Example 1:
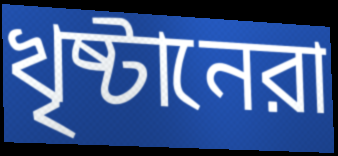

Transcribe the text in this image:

খৃষ্টানেরা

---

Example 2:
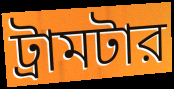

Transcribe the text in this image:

ট্রামটার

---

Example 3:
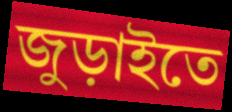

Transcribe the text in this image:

জুড়াইতে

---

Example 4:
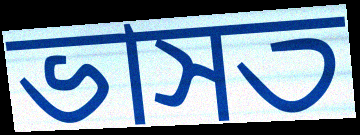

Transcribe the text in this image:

ভাসত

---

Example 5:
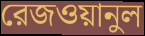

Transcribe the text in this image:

রেজওয়ানুল